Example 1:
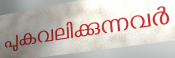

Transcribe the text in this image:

പുകവലിക്കുന്നവർ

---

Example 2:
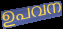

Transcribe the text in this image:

ഉപവന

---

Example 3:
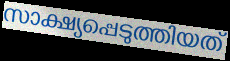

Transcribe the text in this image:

സാക്ഷ്യപ്പെടുത്തിയത്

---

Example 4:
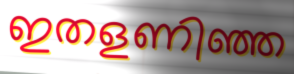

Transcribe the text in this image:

ഇതളണിഞ്ഞ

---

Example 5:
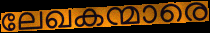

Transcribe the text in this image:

ലേഖകന്മാരെ